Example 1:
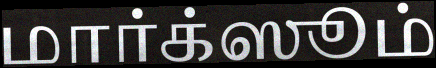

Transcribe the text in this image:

மார்க்ஸூம்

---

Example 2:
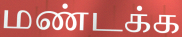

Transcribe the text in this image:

மண்டக்க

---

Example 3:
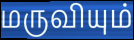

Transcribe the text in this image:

மருவியும்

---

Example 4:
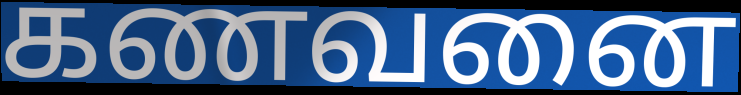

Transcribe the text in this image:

கணவனை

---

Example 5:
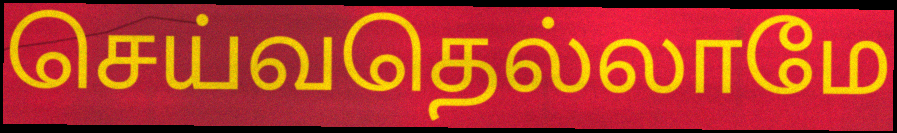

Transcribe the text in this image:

செய்வதெல்லாமே